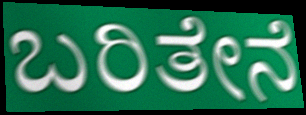
ಬರಿತೇನೆ